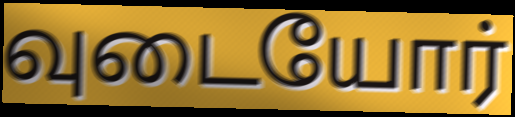
வுடையோர்